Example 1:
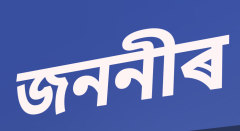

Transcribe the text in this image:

জননীৰ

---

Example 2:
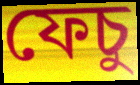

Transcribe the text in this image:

ফেচু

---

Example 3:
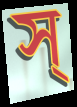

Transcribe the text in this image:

স্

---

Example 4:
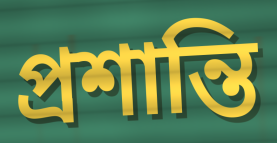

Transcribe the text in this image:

প্ৰশান্তি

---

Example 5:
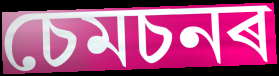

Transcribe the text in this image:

চেমচনৰ